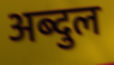
अब्दुल